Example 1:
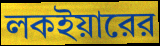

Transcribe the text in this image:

লকইয়ারের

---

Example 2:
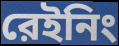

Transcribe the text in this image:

রেইনিং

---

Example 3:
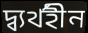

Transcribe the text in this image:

দ্ব্যর্থহীন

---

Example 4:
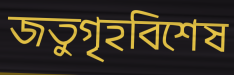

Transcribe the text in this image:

জতুগৃহবিশেষ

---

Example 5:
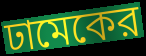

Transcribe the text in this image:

ঢামেকের